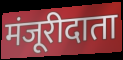
मंजूरीदाता